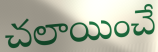
చలాయించే